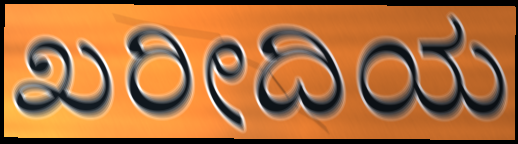
ಖರೀದಿಯ